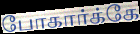
போகார்க்கே